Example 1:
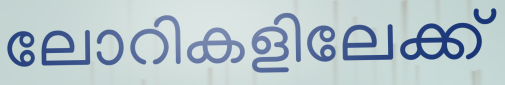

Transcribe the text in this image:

ലോറികളിലേക്ക്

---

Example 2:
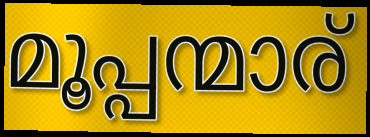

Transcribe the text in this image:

മൂപ്പന്മാര്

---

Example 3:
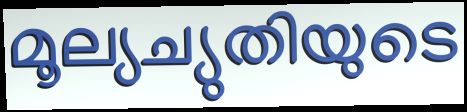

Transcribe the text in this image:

മൂല്യച്യുതിയുടെ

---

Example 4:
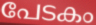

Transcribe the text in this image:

പേടകം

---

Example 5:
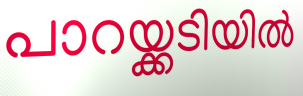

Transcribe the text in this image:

പാറയ്ക്കടിയിൽ